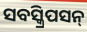
ସବସ୍କ୍ରିପସନ୍